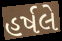
હર્ષલે